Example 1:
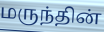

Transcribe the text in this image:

மருந்தின்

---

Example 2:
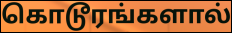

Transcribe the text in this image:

கொடூரங்களால்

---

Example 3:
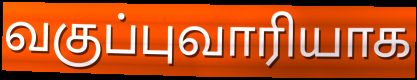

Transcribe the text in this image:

வகுப்புவாரியாக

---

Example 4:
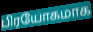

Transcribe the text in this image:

பிரயோகமாக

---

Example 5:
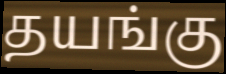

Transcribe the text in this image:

தயங்கு